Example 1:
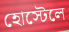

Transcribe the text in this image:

হোস্টেলে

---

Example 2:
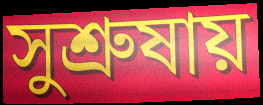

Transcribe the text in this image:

সুশ্রুষায়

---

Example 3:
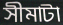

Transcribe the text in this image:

সীমাটা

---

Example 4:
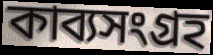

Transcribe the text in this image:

কাব্যসংগ্রহ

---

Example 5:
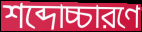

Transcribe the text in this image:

শব্দোচ্চারণে